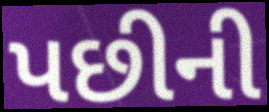
પછીની